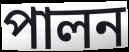
পালন